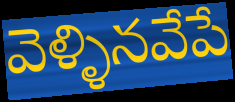
వెళ్ళినవేపే